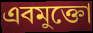
এবমুক্তো